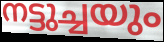
നട്ടുച്ചയും